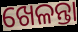
ଖେଳନ୍ତା